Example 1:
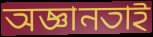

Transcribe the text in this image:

অজ্ঞানতাই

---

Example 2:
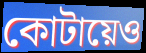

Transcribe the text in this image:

কোটায়েও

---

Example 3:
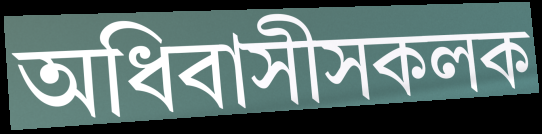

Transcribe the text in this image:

অধিবাসীসকলক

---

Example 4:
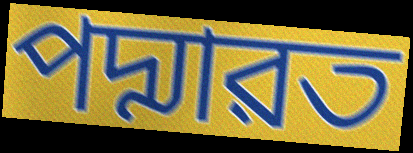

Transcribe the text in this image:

পদ্মাৱত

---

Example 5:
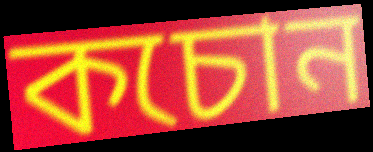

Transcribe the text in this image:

কচোন